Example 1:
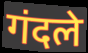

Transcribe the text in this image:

गंदले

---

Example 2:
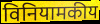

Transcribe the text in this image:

विनियामकीय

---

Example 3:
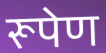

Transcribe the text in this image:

रूपेण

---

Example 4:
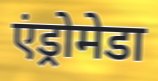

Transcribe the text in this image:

एंड्रोमेडा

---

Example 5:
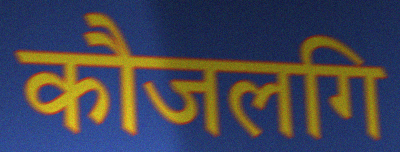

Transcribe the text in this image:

कौजलगि